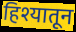
हिश्यातून